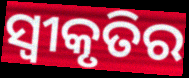
ସ୍ଵୀକୃତିର